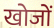
खोजों